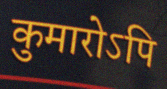
कुमारोऽपि